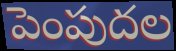
పెంపుదల